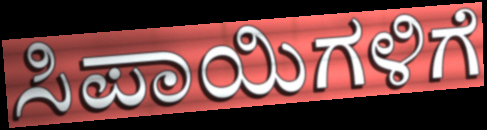
ಸಿಪಾಯಿಗಳಿಗೆ